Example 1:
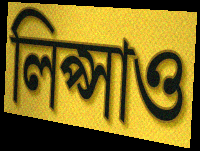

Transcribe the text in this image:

লিপ্সাও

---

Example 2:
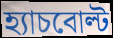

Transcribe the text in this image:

হ্যাচবোল্ট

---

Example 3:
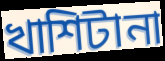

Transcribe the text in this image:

খাশিটানা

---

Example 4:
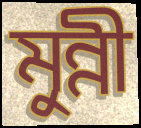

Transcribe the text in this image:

মুন্নী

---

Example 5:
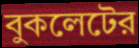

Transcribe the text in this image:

বুকলেটের